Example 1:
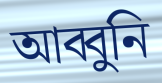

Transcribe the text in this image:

আব্বুনি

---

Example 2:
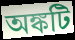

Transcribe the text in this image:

অঙ্কটি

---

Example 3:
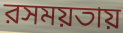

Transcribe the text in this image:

রসময়তায়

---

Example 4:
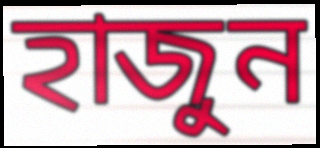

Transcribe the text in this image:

হাজুন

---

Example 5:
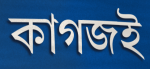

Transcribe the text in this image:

কাগজই